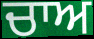
ਚਾਅ